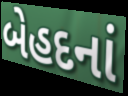
બેહદનાં